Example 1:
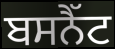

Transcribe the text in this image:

ਬਸਨੈੱਟ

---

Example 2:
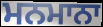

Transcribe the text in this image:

ਮਨਮਾਨਾ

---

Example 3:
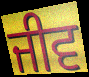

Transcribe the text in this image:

ਜੀਵ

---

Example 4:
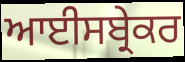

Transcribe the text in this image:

ਆਈਸਬ੍ਰੇਕਰ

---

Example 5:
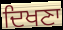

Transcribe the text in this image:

ਦਿਖਣਾ